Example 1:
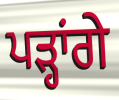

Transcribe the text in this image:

ਪੜ੍ਹਾਂਗੇ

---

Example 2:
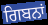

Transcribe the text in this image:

ਗਿਬਨਾਂ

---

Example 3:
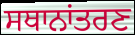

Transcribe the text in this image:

ਸਥਾਨਾਂਤਰਣ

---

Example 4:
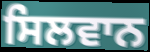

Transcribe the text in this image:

ਸਿਲਵਾਨ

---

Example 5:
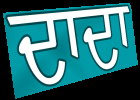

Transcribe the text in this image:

ਦਾਦਾ